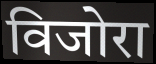
विजोरा